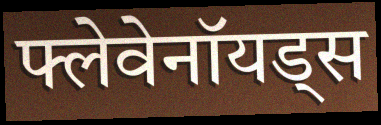
फ्लेवेनॉयड्स